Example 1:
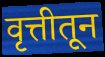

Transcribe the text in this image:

वृत्तीतून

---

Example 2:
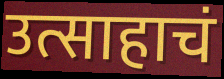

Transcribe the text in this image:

उत्साहाचं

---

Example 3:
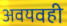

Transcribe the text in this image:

अवयवही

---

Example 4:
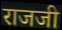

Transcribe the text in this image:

राजजी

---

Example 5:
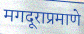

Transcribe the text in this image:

मगदूराप्रमाणे